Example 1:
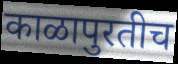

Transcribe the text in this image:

काळापुरतीच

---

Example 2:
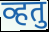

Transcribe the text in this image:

व्हतु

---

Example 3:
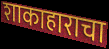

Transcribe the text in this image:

शाकाहाराचा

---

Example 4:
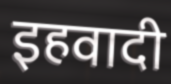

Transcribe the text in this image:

इहवादी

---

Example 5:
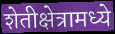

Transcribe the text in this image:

शेतीक्षेत्रामध्ये